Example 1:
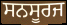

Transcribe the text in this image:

ਸਨਸੂਰਜ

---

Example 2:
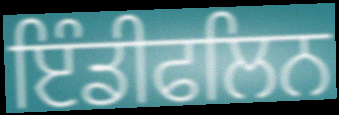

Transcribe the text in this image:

ਇੰਡੀਫਲਿਨ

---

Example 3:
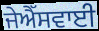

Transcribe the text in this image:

ਜੇਐੱਸਵਾਈ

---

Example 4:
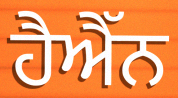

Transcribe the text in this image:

ਹੈਐੱਨ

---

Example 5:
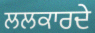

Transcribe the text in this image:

ਲਲਕਾਰਦੇ